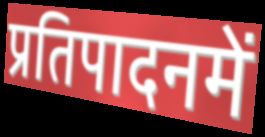
प्रतिपादनमें